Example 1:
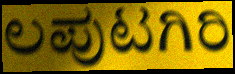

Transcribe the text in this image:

ಲಪುಟಗಿರಿ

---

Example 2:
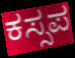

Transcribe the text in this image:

ಕಸ್ಸಪ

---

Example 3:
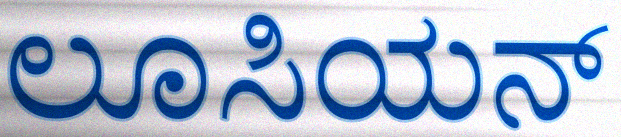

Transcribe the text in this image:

ಲೂಸಿಯನ್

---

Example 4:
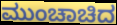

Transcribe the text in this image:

ಮುಂಚಾಚಿದ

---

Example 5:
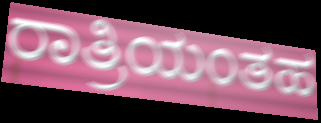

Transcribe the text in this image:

ರಾತ್ರಿಯಂತಹ